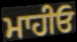
ਮਾਹੀਓ